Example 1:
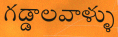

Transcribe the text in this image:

గడ్డాలవాళ్ళు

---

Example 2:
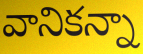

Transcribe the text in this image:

వానికన్నా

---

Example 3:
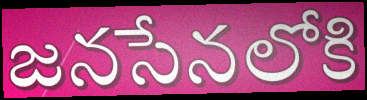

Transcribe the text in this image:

జనసేనలోకి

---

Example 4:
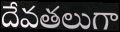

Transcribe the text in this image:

దేవతలుగా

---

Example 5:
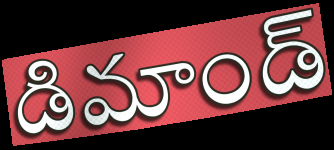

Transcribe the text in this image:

డిమాండ్